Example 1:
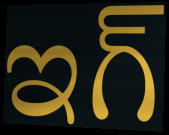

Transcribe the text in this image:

ఇగ్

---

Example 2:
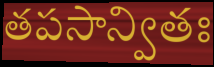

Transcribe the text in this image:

తపసాన్వితః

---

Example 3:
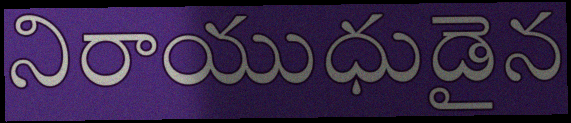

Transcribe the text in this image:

నిరాయుధుడైన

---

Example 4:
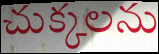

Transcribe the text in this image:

చుక్కలను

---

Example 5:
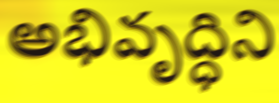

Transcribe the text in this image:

అభివృద్ధిని